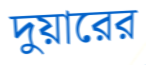
দুয়ারের